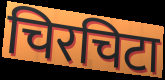
चिरचिटा